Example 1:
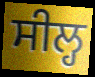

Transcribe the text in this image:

ਸੀਲ੍ਹ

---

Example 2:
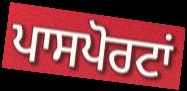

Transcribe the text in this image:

ਪਾਸਪੋਰਟਾਂ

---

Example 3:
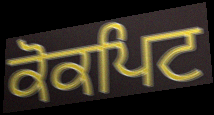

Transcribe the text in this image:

ਕੋਕਪਿਟ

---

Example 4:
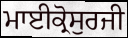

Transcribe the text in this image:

ਮਾਈਕ੍ਰੋਸੁਰਜੀ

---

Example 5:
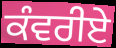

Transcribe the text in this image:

ਕੰਵਰੀਏ